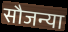
सौजन्या